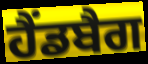
ਹੈਂਡਬੈਗ